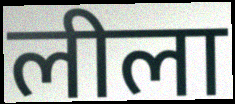
लीला